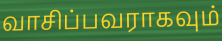
வாசிப்பவராகவும்